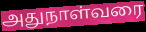
அதுநாள்வரை